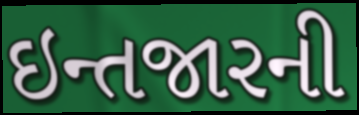
ઇન્તજારની